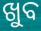
ଖୁବ